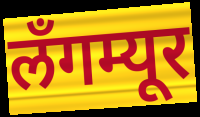
लँगम्यूर